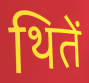
थितें